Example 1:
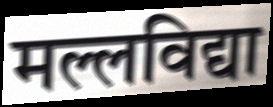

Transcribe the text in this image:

मल्लविद्या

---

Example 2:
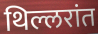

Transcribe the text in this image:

थिल्लरांत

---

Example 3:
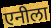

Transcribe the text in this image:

एनीला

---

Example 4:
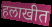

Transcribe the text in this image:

हलाखीत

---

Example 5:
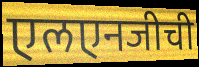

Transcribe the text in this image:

एलएनजीची